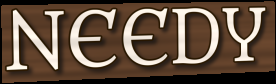
NEEDY